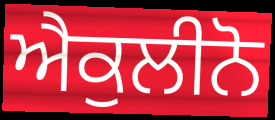
ਐਕੁਲੀਨੋ